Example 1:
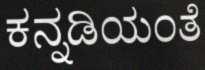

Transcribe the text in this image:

ಕನ್ನಡಿಯಂತೆ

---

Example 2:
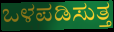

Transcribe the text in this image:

ಒಳಪಡಿಸುತ್ತ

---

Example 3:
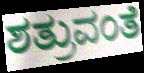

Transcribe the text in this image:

ಶತ್ರುವಂತೆ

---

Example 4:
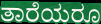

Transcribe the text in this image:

ತಾರೆಯರೂ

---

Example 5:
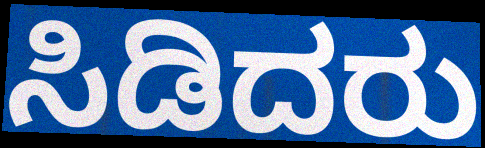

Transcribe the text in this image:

ಸಿಡಿದರು